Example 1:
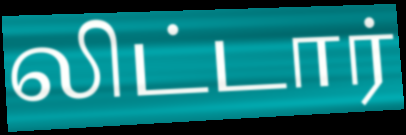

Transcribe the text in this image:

லிட்டார்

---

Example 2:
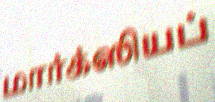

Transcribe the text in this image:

மார்க்ஸியப்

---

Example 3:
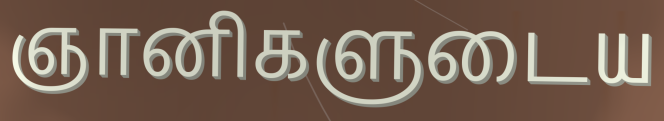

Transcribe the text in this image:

ஞானிகளுடைய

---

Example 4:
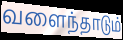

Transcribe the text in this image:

வளைந்தாடும்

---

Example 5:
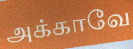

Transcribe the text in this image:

அக்காவே